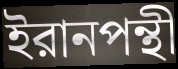
ইরানপন্থী